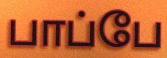
பாப்பே